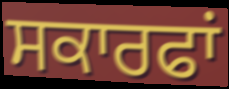
ਸਕਾਰਫਾਂ